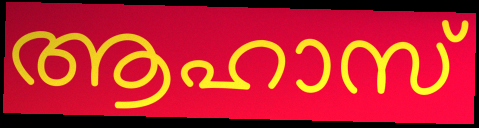
ആഹാസ്